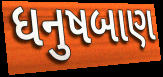
ધનુષબાણ